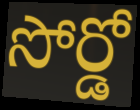
సోర్డో